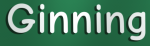
Ginning